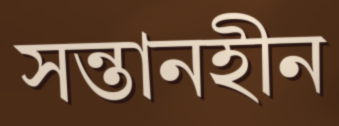
সন্তানহীন